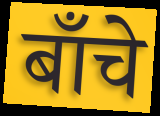
बाँचे